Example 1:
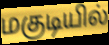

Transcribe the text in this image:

மகுடியில்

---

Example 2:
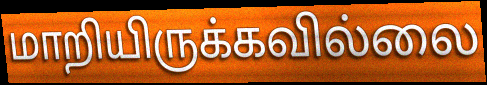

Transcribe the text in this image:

மாறியிருக்கவில்லை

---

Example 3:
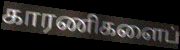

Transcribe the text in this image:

காரணிகளைப்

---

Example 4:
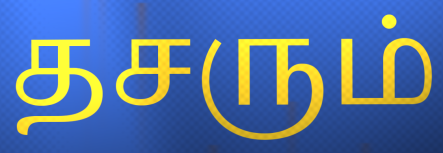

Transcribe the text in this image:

தசரும்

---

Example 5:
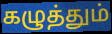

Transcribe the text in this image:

கழுத்தும்